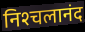
निश्चलानंद